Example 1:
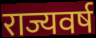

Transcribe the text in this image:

राज्यवर्ष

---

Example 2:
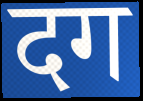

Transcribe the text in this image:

दग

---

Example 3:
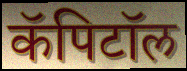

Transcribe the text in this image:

कॅपिटॉल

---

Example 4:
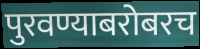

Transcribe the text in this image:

पुरवण्याबरोबरच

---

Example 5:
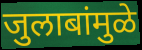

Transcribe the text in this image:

जुलाबांमुळे